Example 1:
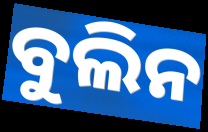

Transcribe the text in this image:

ବୁଲିନ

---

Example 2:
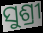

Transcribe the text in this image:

ସୁଶ୍ରୀ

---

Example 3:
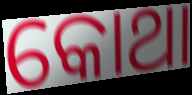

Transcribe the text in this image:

କୋଥା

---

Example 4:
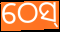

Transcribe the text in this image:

ଠେସ୍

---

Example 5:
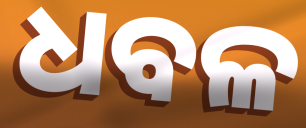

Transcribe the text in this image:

ଧବଳ